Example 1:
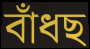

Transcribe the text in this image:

বাঁধছ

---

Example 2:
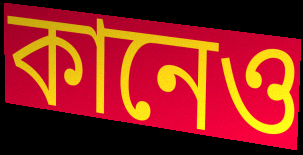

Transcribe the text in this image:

কানেও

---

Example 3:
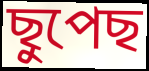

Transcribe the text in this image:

ছুপেছ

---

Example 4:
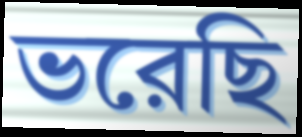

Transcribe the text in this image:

ভরেছি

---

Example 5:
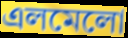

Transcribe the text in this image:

এলমেলো